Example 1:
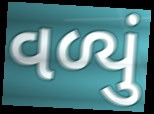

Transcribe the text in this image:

વળ્યું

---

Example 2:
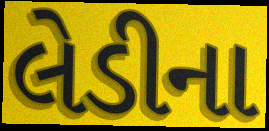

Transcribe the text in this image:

લેડીના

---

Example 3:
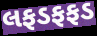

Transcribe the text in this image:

લફડફફડ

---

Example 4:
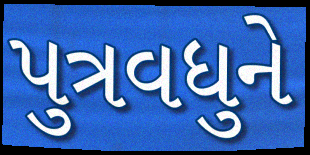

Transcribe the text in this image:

પુત્રવધુને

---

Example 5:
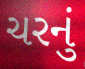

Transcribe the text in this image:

ચરનું